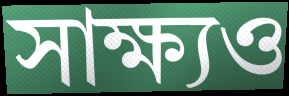
সাক্ষ্যও